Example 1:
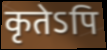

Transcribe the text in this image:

कृतेऽपि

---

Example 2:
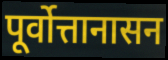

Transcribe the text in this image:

पूर्वोत्तानासन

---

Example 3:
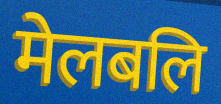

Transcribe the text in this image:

मेलबलि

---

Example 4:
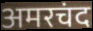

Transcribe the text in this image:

अमरचंद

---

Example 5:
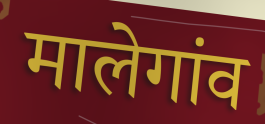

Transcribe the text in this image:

मालेगांव